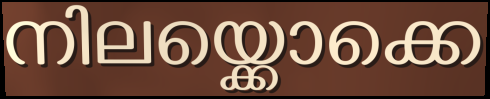
നിലയ്ക്കൊക്കെ